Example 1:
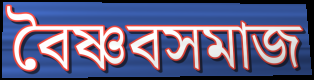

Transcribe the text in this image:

বৈষ্ণবসমাজ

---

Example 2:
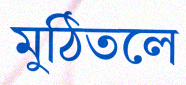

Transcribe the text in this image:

মুঠিতলে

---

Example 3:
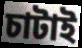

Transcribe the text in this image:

চাটাই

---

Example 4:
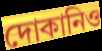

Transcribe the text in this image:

দোকানিও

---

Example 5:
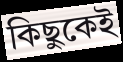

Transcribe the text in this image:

কিছুকেই